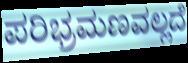
ಪರಿಭ್ರಮಣವಲ್ಲದೆ